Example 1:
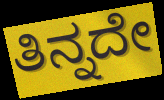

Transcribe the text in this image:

ತಿನ್ನದೇ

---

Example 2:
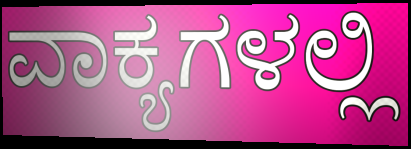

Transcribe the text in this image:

ವಾಕ್ಯಗಳಲ್ಲಿ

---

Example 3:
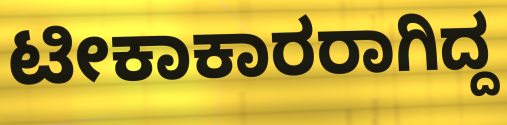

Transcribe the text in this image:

ಟೀಕಾಕಾರರಾಗಿದ್ದ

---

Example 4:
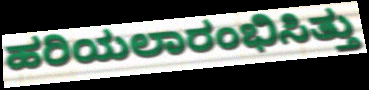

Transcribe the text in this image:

ಹರಿಯಲಾರಂಭಿಸಿತ್ತು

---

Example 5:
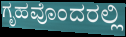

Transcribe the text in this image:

ಗೃಹವೊಂದರಲ್ಲಿ